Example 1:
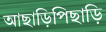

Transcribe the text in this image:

আছাড়িপিছাড়ি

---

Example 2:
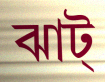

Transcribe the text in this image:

ঝাট্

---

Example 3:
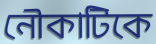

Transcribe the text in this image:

নৌকাটিকে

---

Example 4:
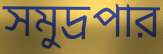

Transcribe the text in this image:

সমুদ্রপার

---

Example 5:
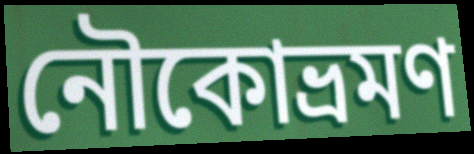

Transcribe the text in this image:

নৌকোভ্রমণ